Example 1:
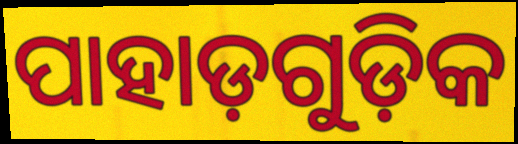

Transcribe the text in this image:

ପାହାଡ଼ଗୁଡ଼ିକ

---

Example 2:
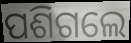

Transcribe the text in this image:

ପଶିଗଲେ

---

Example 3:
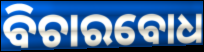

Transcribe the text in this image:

ବିଚାରବୋଧ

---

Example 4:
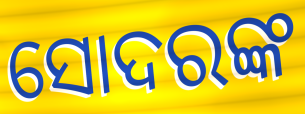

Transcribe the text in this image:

ସୋଦରଙ୍କ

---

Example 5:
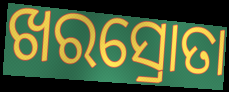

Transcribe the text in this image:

ଖରସ୍ରୋତା